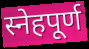
स्नेहपूर्ण